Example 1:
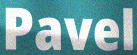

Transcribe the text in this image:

Pavel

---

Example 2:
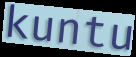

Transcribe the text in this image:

kuntu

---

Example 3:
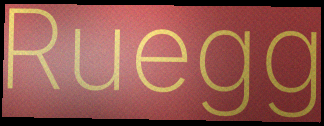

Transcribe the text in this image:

Ruegg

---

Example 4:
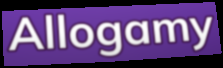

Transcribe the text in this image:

Allogamy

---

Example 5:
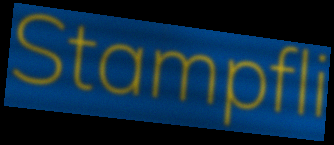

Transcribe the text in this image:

Stampfli